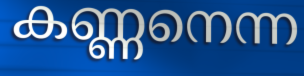
കണ്ണനെന്ന